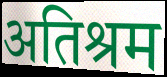
अतिश्रम